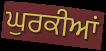
ਘੁਰਕੀਆਂ